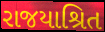
રાજયાશ્રિત